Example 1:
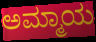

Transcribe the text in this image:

ಅಮ್ಮಾಯ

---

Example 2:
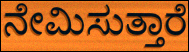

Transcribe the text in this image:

ನೇಮಿಸುತ್ತಾರೆ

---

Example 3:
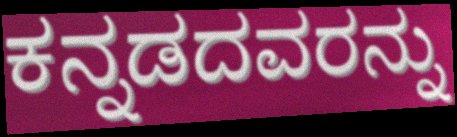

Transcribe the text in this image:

ಕನ್ನಡದವರನ್ನು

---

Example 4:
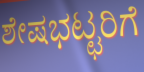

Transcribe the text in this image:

ಶೇಷಭಟ್ಟರಿಗೆ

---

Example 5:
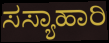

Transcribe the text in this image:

ಸಸ್ಯಾಹಾರಿ